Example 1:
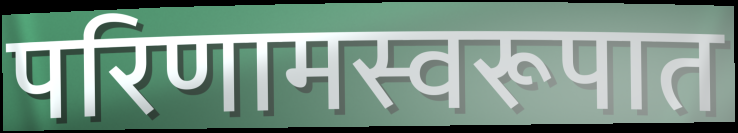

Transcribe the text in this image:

परिणामस्वरूपात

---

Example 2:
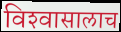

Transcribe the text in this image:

विश्वासालाच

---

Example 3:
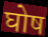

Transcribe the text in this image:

घोष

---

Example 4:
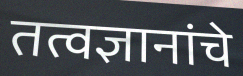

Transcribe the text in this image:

तत्वज्ञानांचे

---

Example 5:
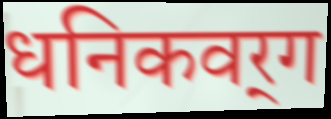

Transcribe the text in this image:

धनिकवर्ग